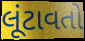
લૂંટાવતો